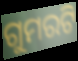
ଗୁମରଟି